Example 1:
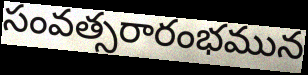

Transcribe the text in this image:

సంవత్సరారంభమున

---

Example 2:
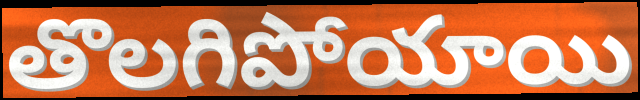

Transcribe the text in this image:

తొలగిపోయాయి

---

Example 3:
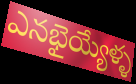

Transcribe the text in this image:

ఎనభైయ్యేళ్ళ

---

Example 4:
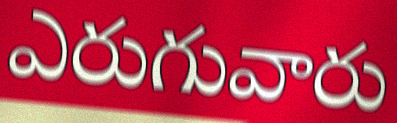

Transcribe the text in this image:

ఎరుగువారు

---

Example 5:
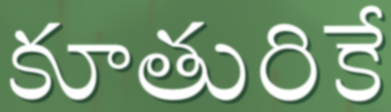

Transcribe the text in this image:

కూతురికే